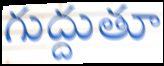
గుద్దుతూ